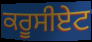
ਕਰੂਸੀਏਟ